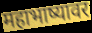
महाभाष्यावर